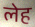
लेह